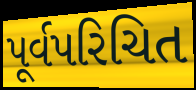
પૂર્વપરિચિત